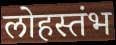
लोहस्तंभ